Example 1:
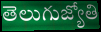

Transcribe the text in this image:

తెలుగుజ్యోతి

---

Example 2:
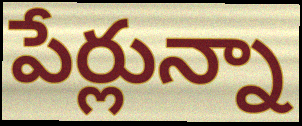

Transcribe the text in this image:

పేర్లున్నా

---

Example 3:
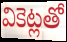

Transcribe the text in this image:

వికెట్లతో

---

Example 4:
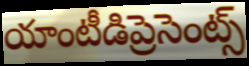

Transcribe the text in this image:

యాంటీడిప్రెసెంట్స్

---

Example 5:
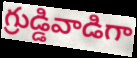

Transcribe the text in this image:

గ్రుడ్డివాడిగా